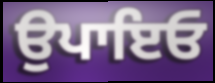
ਉਪਾਇਓ